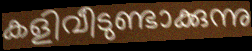
കളിവീടുണ്ടാക്കുന്നു